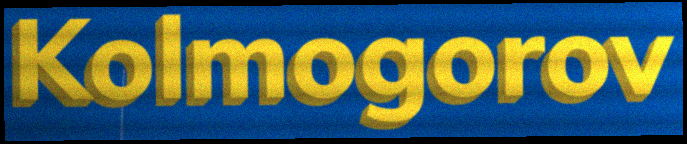
Kolmogorov